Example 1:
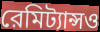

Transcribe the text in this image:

রেমিট্যান্সও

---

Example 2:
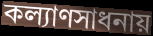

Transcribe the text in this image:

কল্যাণসাধনায়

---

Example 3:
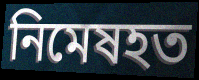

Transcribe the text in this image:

নিমেষহত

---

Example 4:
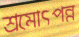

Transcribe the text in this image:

শ্রমোৎপন্ন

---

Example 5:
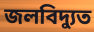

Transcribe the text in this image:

জলবিদ্যুত